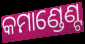
କମାଣ୍ଡେଣ୍ଟ